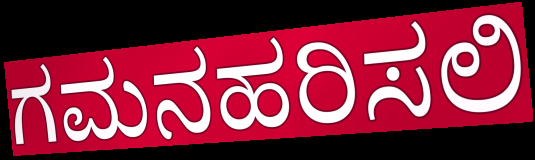
ಗಮನಹರಿಸಲಿ